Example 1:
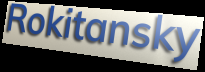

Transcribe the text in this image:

Rokitansky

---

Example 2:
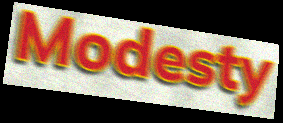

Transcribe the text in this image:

Modesty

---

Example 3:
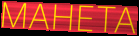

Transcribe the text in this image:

MAHETA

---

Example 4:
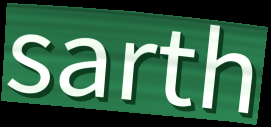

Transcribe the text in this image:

sarth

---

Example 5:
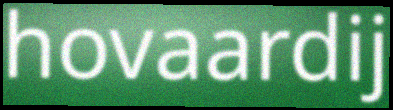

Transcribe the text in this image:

hovaardij